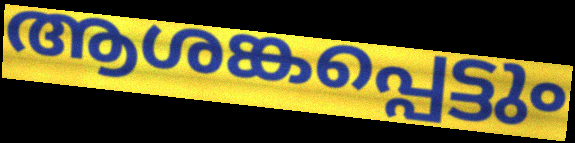
ആശങ്കപ്പെട്ടും